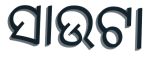
ସାଉଟା